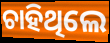
ଚାହିଥିଲେ